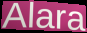
Alara